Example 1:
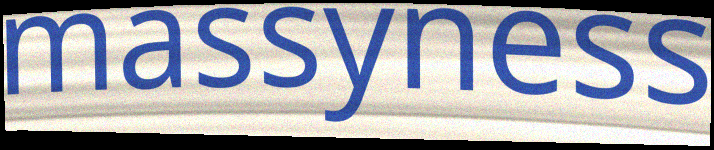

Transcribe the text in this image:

massyness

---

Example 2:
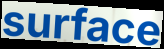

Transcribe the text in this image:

surface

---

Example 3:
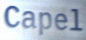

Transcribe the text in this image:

Capel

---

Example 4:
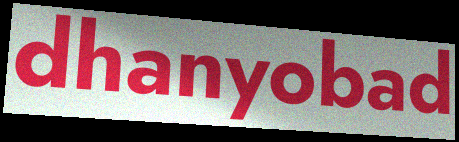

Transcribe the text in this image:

dhanyobad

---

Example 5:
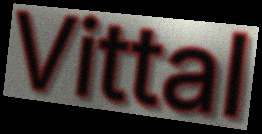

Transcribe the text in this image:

Vittal